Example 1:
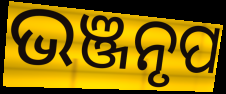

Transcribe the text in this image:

ଭଞ୍ଜନୃପ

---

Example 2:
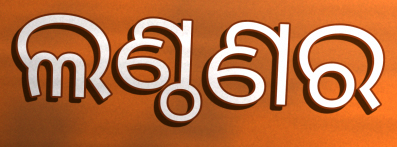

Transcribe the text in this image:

ଲଣ୍ଠଣର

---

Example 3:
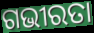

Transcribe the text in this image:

ଗଭୀରତା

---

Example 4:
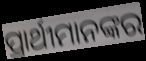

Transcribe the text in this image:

ପ୍ରାର୍ଥୀମାନଙ୍କର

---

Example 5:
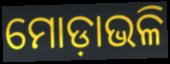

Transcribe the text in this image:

ମୋଡ଼ାଭଳି